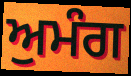
ਅੁਮੰਗ